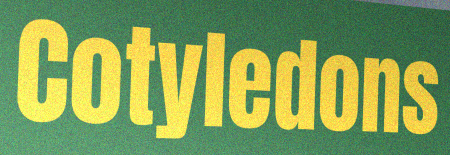
Cotyledons